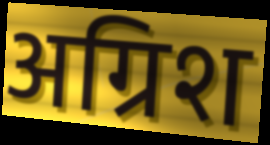
अग्रिश